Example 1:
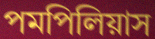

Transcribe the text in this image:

পমপিলিয়াস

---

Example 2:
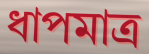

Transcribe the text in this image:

ধাপমাত্র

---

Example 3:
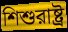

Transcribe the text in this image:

শিশুরাষ্ট্র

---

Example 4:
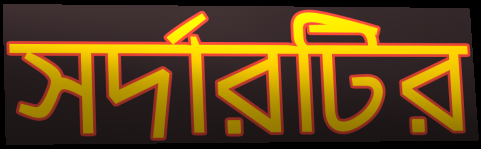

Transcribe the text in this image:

সর্দারটির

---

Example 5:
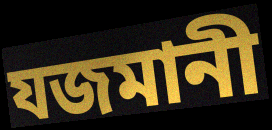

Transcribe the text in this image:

যজমানী